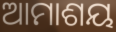
ଆମାଶୟ